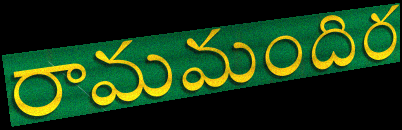
రామమందిర